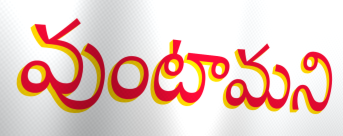
వుంటామని